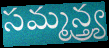
సమ్మన్త్ర్య